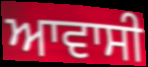
ਆਵਾਸੀ